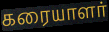
கரையாளர்